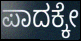
ಪಾದಕ್ಕೇ